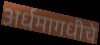
अर्धमागधीचे